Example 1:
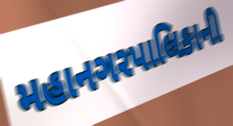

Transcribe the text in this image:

મહાનગરપાલિકાની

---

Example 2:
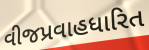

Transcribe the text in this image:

વીજપ્રવાહધારિત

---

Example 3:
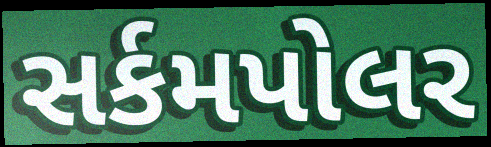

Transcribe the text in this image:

સર્કમપોલર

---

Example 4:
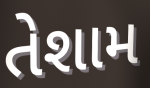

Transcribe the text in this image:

તેશામ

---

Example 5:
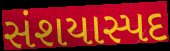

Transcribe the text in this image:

સંશયાસ્પદ